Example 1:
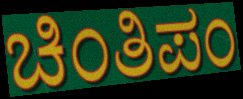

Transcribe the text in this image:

ಚಿಂತಿಪಂ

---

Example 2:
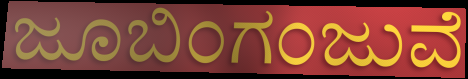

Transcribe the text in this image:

ಜೂಬಿಂಗಂಜುವೆ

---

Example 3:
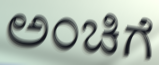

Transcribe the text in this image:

ಅಂಚಿಗೆ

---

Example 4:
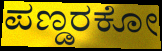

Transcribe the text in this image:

ಪಣ್ಡರಕೋ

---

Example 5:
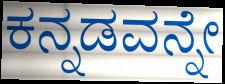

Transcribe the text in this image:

ಕನ್ನಡವನ್ನೇ